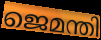
ജെമന്തി